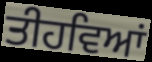
ਤੀਹਵਿਆਂ